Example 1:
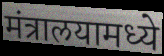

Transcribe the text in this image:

मंत्रालयामध्ये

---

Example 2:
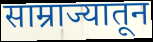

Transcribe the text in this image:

साम्राज्यातून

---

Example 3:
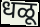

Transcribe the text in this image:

धळू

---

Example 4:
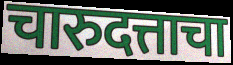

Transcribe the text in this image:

चारुदत्ताचा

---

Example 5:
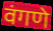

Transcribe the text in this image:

वंगणे